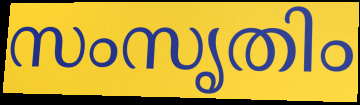
സംസൃതിം